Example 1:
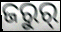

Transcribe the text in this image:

ଜରୁର୍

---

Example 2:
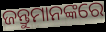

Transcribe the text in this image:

ଜନ୍ତୁମାନଙ୍କରେ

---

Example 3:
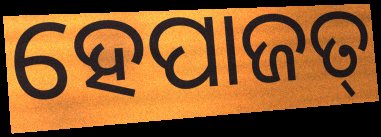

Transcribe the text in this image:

ହେପାଜତ୍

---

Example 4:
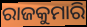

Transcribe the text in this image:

ରାଜକୁମାରି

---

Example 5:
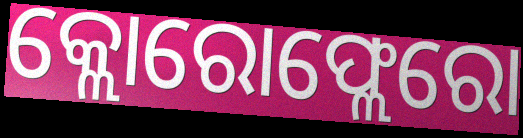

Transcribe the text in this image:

କ୍ଲୋରୋଫ୍ଲେରୋ